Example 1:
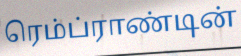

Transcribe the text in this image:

ரெம்ப்ராண்டின்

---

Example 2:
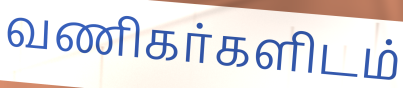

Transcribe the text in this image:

வணிகர்களிடம்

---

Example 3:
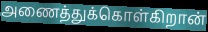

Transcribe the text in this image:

அணைத்துக்கொள்கிறான்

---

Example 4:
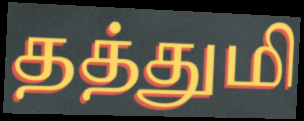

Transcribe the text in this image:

தத்துமி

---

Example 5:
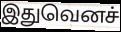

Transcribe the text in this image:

இதுவெனச்